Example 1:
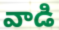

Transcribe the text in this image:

వాడి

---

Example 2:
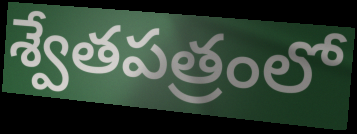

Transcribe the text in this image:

శ్వేతపత్రంలో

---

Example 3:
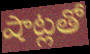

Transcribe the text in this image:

షాట్లతో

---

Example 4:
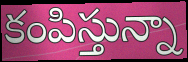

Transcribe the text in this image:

కంపిస్తున్నా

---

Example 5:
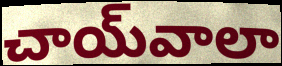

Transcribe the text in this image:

చాయ్‌వాలా